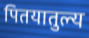
पितयातुल्य